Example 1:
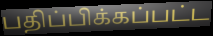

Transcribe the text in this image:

பதிப்பிக்கப்பட்ட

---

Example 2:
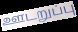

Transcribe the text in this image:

ஊடறுப்பு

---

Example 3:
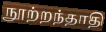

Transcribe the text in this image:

நூற்றந்தாதி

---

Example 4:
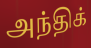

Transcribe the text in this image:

அந்திக்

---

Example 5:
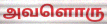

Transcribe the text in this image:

அவளொரு